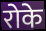
रोके